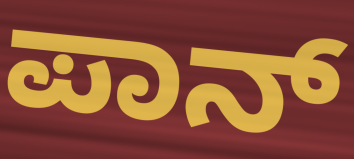
ಪಾನ್